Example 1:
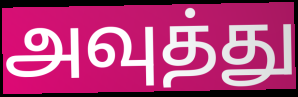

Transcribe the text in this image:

அவுத்து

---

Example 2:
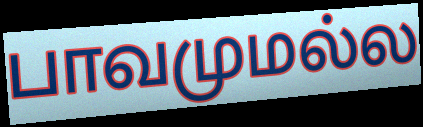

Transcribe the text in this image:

பாவமுமல்ல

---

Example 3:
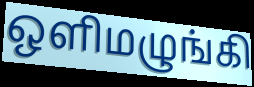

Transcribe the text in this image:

ஒளிமழுங்கி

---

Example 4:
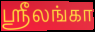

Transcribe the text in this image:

ஶ்ரீலங்கா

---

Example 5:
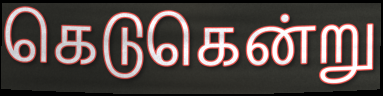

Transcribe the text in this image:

கெடுகென்று